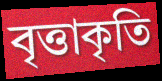
বৃত্তাকৃতি